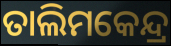
ତାଲିମକେନ୍ଦ୍ର